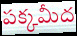
పక్కమీద